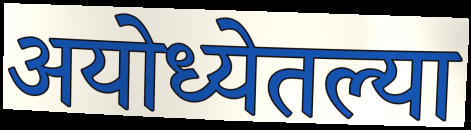
अयोध्येतल्या